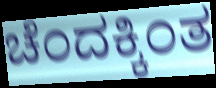
ಚೆಂದಕ್ಕಿಂತ